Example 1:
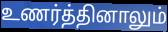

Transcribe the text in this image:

உணர்த்தினாலும்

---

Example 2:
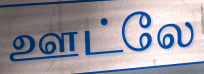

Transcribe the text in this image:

ஊட்லே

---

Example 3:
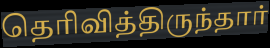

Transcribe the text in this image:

தெரிவித்திருந்தார்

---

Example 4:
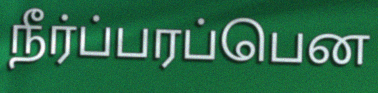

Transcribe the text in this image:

நீர்ப்பரப்பென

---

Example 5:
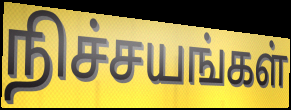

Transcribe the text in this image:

நிச்சயங்கள்